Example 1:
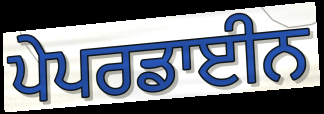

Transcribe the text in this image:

ਪੇਪਰਡਾਈਨ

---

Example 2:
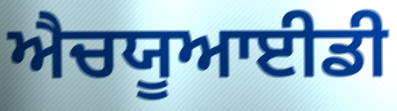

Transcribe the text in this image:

ਐਚਯੂਆਈਡੀ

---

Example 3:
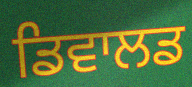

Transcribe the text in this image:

ਡਿਵਾਲਡ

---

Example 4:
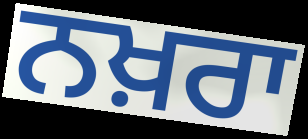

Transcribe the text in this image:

ਨਖ਼ਰਾ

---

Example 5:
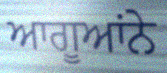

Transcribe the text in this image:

ਆਗੂਆਂਨੇ